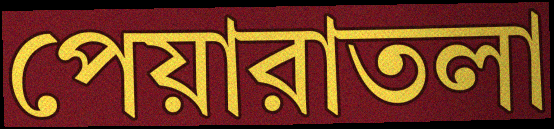
পেয়ারাতলা